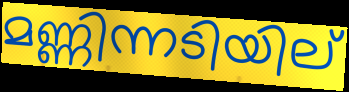
മണ്ണിന്നടിയില്